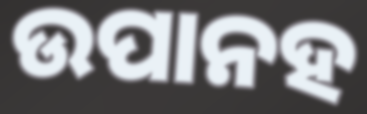
ଉପାନହ